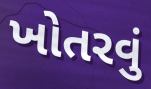
ખોતરવું